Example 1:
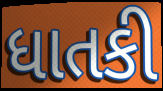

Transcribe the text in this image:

ધાતકી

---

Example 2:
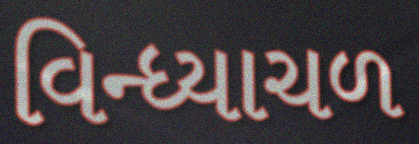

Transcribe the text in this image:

વિન્ધ્યાચળ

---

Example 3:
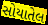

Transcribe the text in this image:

સોયાતેલ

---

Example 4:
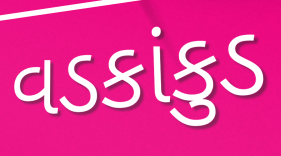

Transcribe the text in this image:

વડકાંકુડ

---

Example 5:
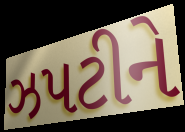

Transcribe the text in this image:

ઝપટીને